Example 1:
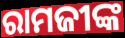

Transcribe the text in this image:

ରାମଜୀଙ୍କ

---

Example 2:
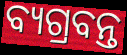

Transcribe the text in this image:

ବ୍ୟଗ୍ରବନ୍ତ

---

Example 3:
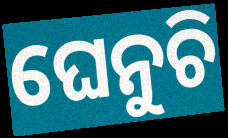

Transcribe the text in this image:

ଘେନୁଚି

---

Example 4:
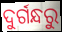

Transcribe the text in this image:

ଦୁର୍ଗନ୍ଧରୁ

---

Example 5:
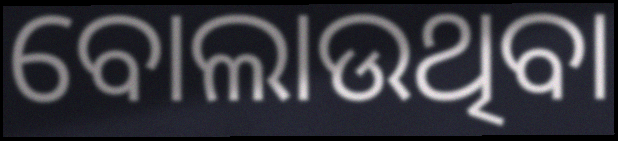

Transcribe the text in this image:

ବୋଲାଉଥିବା